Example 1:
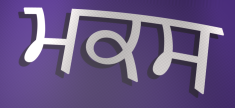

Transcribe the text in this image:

ਮਕਸ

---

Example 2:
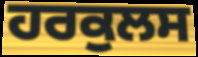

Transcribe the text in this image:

ਹਰਕੁਲਸ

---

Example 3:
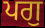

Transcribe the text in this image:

ਪਗੁ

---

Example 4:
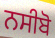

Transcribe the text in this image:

ਨਸੀਬੋ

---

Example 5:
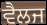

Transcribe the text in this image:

ਵੈਲਜ